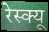
रेस्क्यू